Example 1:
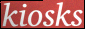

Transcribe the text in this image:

kiosks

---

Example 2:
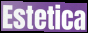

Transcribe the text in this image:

Estetica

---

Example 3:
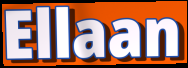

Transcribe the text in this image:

Ellaan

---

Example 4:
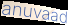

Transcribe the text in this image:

anuvaad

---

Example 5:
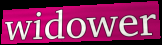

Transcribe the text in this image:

widower